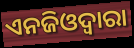
ଏନଜିଓଦ୍ୱାରା